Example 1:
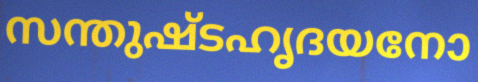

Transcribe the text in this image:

സന്തുഷ്ടഹൃദയനോ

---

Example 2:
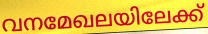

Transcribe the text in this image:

വനമേഖലയിലേക്ക്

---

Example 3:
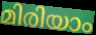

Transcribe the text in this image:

മിരിയാം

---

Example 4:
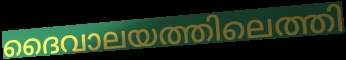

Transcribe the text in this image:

ദൈവാലയത്തിലെത്തി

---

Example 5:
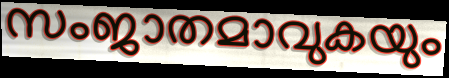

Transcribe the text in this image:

സംജാതമാവുകയും